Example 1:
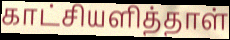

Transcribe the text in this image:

காட்சியளித்தாள்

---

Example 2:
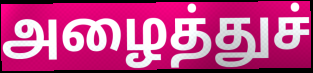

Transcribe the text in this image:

அழைத்துச்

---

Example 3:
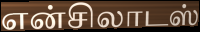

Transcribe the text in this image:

என்சிலாடஸ்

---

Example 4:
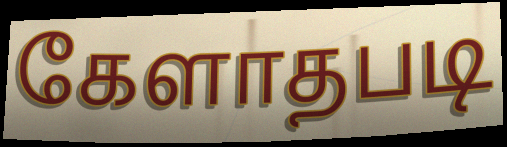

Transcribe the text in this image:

கேளாதபடி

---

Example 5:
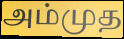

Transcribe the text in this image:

அம்முத